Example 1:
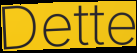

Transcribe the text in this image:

Dette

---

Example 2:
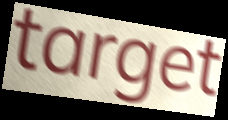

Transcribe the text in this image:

target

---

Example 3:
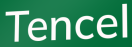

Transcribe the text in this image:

Tencel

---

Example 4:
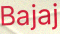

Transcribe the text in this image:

Bajaj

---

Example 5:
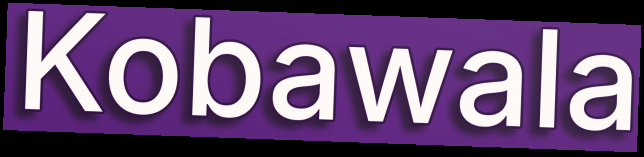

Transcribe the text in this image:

Kobawala